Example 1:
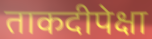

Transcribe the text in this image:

ताकदीपेक्षा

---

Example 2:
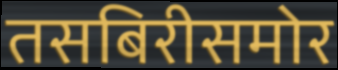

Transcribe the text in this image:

तसबिरीसमोर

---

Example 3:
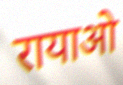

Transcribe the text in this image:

रायाओ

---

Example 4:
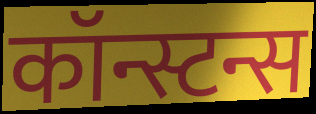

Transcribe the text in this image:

कॉन्स्टन्स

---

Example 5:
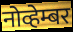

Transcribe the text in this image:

नोव्हेम्बर